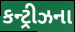
કન્ટ્રીઝના